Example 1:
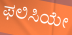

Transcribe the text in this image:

ಫಲಿಸಿಯೇ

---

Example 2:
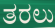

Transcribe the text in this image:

ತರಲು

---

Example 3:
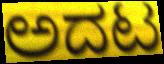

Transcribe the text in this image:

ಅದಟ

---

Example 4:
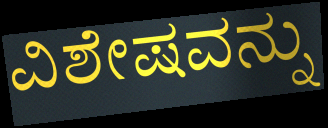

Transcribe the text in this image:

ವಿಶೇಷವನ್ನು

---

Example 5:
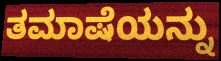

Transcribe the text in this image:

ತಮಾಷೆಯನ್ನು